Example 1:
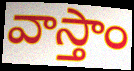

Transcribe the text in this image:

వాస్తాం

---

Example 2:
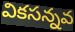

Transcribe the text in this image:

వికసన్నవ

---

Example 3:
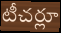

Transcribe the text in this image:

టీచర్లూ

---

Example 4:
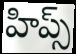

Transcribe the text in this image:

హిప్స్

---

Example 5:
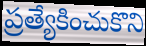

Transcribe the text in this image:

ప్రత్యేకించుకొని